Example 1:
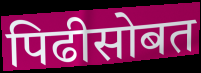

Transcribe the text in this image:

पिढीसोबत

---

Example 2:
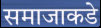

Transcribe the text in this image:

समाजाकडे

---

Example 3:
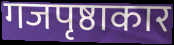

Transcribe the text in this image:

गजपृष्ठाकार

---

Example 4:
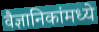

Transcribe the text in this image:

वैज्ञानिकांमध्ये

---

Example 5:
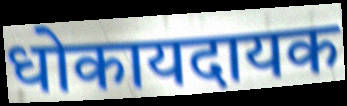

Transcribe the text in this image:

धोकायदायक